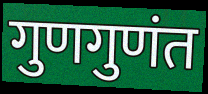
गुणगुणंत